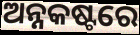
ଅନ୍ନକଷ୍ଟରେ